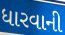
ધારવાની